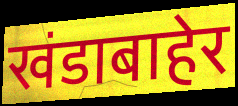
खंडाबाहेर